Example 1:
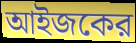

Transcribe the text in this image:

আইজকের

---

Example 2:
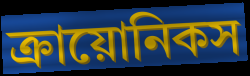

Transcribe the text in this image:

ক্রায়োনিকস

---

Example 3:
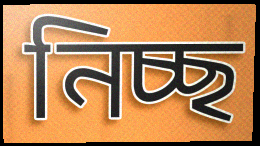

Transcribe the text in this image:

নিচ্ছ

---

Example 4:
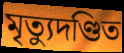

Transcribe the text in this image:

মৃত্যুদণ্ডিত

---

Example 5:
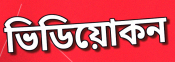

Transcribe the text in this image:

ভিডিয়োকন